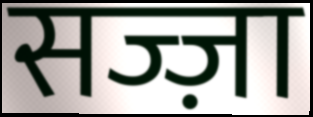
सज्ज़ा